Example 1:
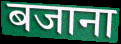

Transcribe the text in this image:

बजाना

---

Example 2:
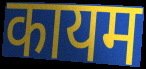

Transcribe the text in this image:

कायम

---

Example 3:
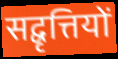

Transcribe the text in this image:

सद्वृत्तियों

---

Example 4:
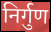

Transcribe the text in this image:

निर्गुण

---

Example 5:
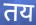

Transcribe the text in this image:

तय